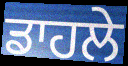
ਡਾਹਲੇ